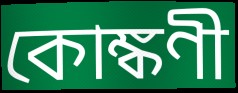
কোঙ্কণী